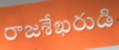
రాజశేఖరుడి